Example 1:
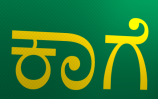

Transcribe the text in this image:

ಕಾಗೆ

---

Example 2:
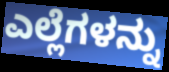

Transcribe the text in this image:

ಎಲ್ಲೆಗಳನ್ನು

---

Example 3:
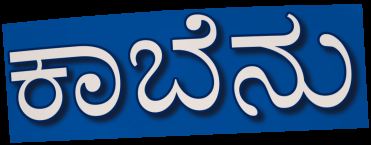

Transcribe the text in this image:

ಕಾಬೆನು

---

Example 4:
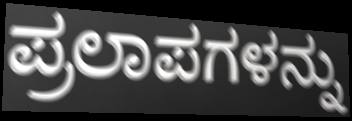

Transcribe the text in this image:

ಪ್ರಲಾಪಗಳನ್ನು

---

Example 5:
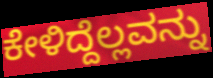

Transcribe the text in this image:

ಕೇಳಿದ್ದೆಲ್ಲವನ್ನು